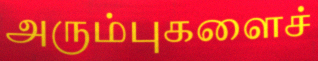
அரும்புகளைச்